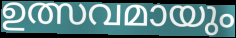
ഉത്സവമായും